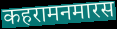
कहरामनमारस